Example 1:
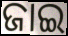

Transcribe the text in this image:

ଜାଇ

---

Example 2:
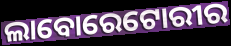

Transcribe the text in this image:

ଲାବୋରେଟୋରୀର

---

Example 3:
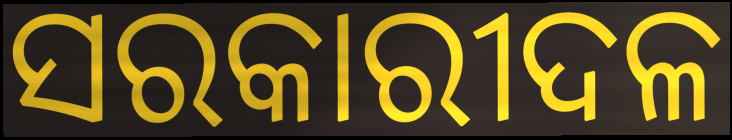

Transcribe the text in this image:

ସରକାରୀଦଳ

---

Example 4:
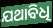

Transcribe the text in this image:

ଯଥାବିଧି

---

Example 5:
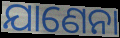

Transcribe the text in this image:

ଯାଣେନା